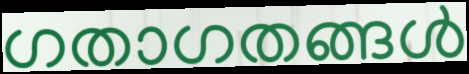
ഗതാഗതങ്ങൾ